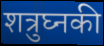
शत्रुघ्नकी